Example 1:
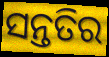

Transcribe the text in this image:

ସନ୍ତତିର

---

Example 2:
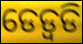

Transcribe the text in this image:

ଡେଡ୍ବଡି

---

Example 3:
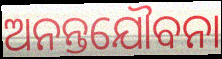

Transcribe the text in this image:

ଅନନ୍ତଯୌବନା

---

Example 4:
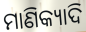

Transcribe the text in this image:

ମାଣିକ୍ୟାଦି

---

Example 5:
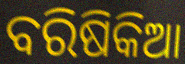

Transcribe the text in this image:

ବରିଷିକିଆ